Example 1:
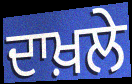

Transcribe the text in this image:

ਦਾਖ਼ਲੇ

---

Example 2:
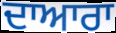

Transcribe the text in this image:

ਦਾਆਰਾ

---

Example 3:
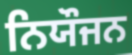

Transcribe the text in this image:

ਨਿਯੌਜਨ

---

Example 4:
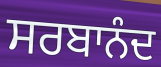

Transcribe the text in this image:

ਸਰਬਾਨੰਦ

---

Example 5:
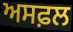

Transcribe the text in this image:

ਅਸਫ਼ਲ